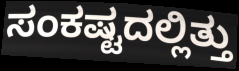
ಸಂಕಷ್ಟದಲ್ಲಿತ್ತು